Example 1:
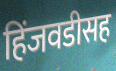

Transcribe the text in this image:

हिंजवडीसह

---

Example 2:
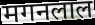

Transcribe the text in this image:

मगनलाल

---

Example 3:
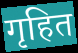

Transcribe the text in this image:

गृहित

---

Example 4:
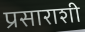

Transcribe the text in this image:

प्रसाराशी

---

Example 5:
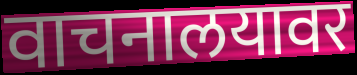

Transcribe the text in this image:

वाचनालयावर